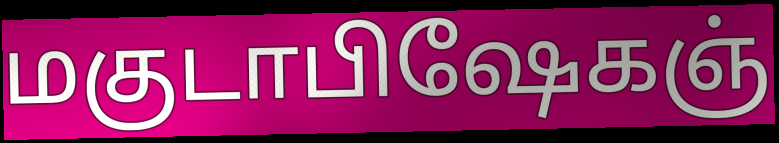
மகுடாபிஷேகஞ்